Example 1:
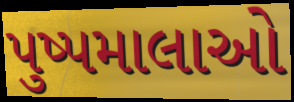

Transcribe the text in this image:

પુષ્પમાલાઓ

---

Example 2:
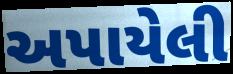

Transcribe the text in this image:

અપાયેલી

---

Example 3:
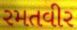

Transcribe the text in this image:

રમતવીર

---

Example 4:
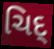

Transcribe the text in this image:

ચિદ્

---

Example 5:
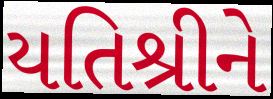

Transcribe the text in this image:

યતિશ્રીને